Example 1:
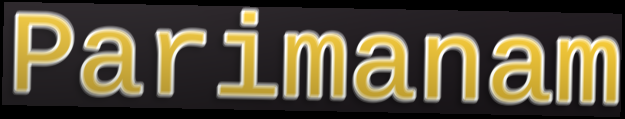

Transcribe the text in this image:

Parimanam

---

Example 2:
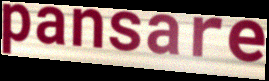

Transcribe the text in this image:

pansare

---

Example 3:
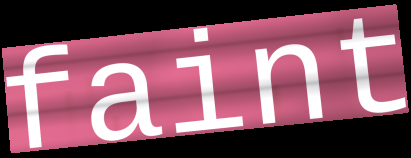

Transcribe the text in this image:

faint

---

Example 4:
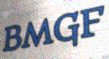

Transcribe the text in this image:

BMGF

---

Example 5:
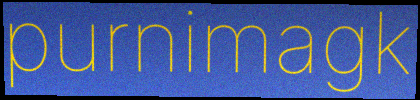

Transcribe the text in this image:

purnimagk